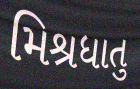
મિશ્રધાતુ